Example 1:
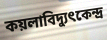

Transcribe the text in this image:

কয়লাবিদ্যুৎকেন্দ্র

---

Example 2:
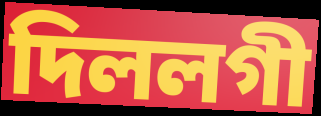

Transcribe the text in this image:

দিললগী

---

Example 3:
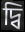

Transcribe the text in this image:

দ্বি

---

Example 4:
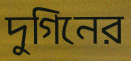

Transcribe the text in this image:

দুগিনের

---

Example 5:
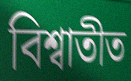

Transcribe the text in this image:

বিশ্বাতীত